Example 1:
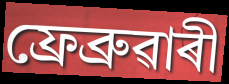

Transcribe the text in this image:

ফ্ৰেব্ৰুৱাৰী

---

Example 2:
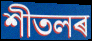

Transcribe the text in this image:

শীতলৰ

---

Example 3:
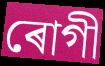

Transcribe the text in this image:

ৰোগী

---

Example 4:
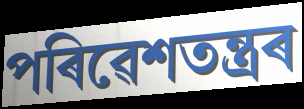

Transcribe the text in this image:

পৰিৱেশতন্ত্ৰৰ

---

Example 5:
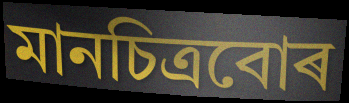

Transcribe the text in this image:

মানচিত্ৰবোৰ